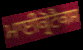
ਮਾਈਕ੍ਰੋਟੈਕਸ